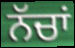
ਨੱਚਾਂ